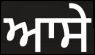
ਆਸੇ